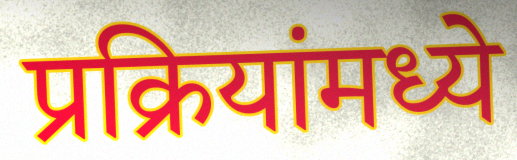
प्रक्रियांमध्ये